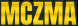
MCZMA